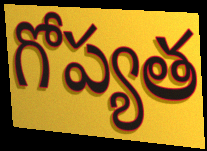
గోప్యత